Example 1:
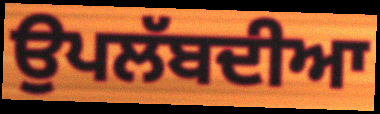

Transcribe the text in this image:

ਉਪਲੱਬਦੀਆ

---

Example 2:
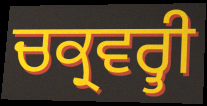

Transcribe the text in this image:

ਚਕ੍ਰਵਰ੍ਤੀ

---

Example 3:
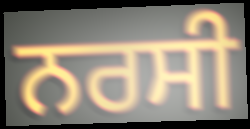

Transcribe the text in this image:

ਨਰਸੀ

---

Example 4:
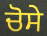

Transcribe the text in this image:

ਚੋਸੇ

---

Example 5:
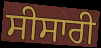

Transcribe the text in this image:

ਸੀਸਾਰੀ